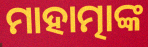
ମାହାତ୍ମାଙ୍କ